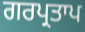
ਗਰਪ੍ਰਤਾਪ